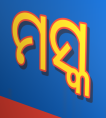
ମସ୍କ